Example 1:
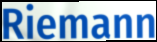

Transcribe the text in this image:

Riemann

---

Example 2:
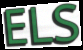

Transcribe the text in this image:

ELS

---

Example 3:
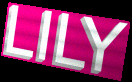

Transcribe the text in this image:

LILY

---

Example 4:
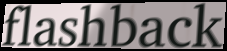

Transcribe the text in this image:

flashback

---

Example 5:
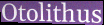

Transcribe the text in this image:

Otolithus